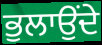
ਭੁਲਾਉਂਦੇ